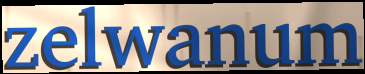
zelwanum